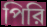
পিরি